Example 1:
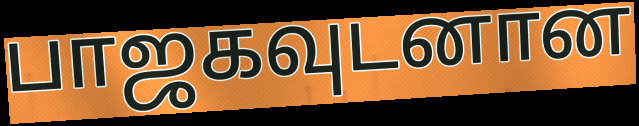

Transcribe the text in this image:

பாஜகவுடனான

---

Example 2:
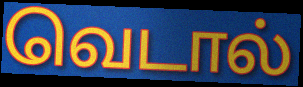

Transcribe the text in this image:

வெடால்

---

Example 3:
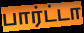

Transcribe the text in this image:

பார்ட்டா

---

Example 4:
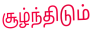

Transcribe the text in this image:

சூழ்ந்திடும்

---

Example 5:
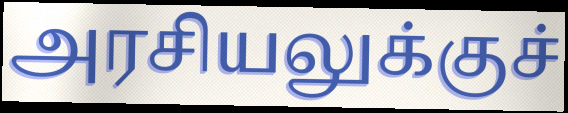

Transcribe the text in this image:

அரசியலுக்குச்